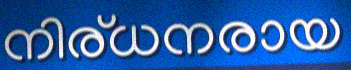
നിര്ധനരായ